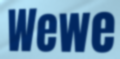
Wewe